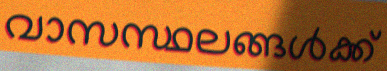
വാസസ്ഥലങ്ങൾക്ക്